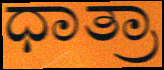
ಧಾತ್ರಾ